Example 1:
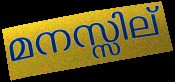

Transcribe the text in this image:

മനസ്സില്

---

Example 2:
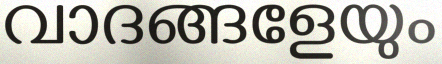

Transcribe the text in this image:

വാദങ്ങളേയും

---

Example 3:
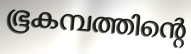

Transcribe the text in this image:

ഭൂകമ്പത്തിന്റെ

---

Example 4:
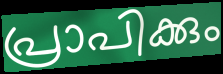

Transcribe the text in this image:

പ്രാപിക്കും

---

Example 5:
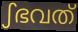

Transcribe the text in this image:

ഽഭവത്